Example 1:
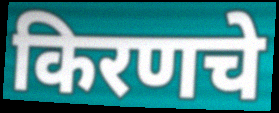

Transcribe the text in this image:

किरणचे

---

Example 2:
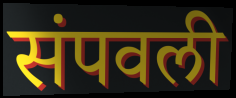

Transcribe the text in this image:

संपवली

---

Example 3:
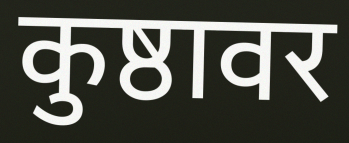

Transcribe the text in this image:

कुष्ठावर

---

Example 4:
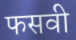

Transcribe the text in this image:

फसवी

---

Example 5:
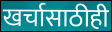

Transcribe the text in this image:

खर्चासाठीही